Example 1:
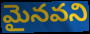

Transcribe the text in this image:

మైనవని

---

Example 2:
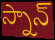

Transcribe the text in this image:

స్నాన్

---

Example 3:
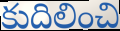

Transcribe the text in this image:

కుదిలించి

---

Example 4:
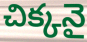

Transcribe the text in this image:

చిక్కనై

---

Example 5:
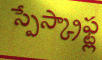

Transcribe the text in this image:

స్పేస్క్రాఫ్ట్ల